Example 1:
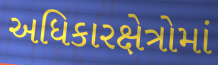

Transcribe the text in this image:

અધિકારક્ષેત્રોમાં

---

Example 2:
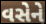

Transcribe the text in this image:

વસેને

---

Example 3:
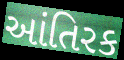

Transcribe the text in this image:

આંતિરક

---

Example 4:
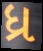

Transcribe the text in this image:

ધ્ર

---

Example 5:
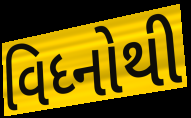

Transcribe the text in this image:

વિધ્નોથી